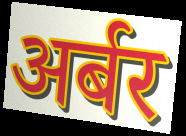
अर्बर